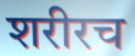
शरीरच